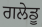
ਗਲੇਡੂ